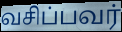
வசிப்பவர்